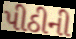
પીઠીની